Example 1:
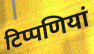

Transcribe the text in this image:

टिप्पणियां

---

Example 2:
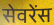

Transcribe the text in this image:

सेवरेंस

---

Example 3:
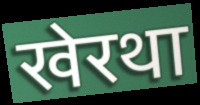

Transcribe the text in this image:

खेरथा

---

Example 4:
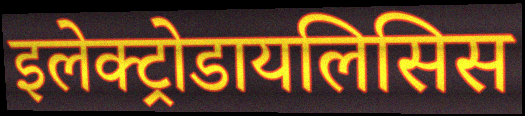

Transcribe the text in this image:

इलेक्ट्रोडायलिसिस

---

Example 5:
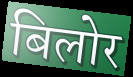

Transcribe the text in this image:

बिलोर